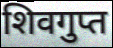
शिवगुप्त